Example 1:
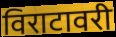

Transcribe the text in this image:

विराटावरी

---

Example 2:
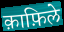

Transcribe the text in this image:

क़ाफ़िले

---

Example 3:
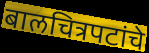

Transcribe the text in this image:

बालचित्रपटांचे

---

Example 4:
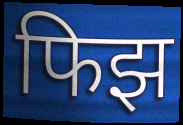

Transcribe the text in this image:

फिझ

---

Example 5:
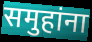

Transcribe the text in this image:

समुहांना